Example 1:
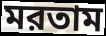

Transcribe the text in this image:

মরতাম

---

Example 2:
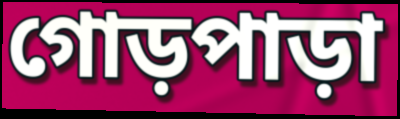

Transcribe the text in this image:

গোড়পাড়া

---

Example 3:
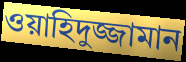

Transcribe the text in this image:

ওয়াহিদুজ্জামান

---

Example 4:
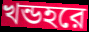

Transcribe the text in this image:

খন্ডহরে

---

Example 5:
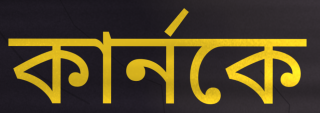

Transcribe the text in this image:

কার্নকে